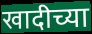
खादीच्या